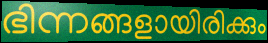
ഭിന്നങ്ങളായിരിക്കും